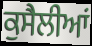
ਕੁਸੈਲੀਆਂ